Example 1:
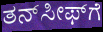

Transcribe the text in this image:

ತನ್‍ಸೀಫ್‍ಗೆ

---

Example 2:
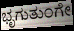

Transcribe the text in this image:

ಭೃಗುತುಂಗೇ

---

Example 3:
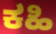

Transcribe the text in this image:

ಕಹಿ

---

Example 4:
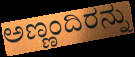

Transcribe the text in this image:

ಅಣ್ಣಂದಿರನ್ನು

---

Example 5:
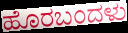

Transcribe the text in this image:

ಹೊರಬಂದಳು